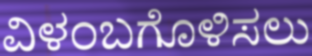
ವಿಳಂಬಗೊಳಿಸಲು